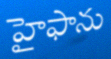
హైఫాను